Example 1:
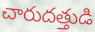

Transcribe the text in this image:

చారుదత్తుడి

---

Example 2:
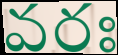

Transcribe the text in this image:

వరః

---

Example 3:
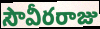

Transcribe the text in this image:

సౌవీరరాజు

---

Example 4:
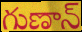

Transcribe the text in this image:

గుణాన్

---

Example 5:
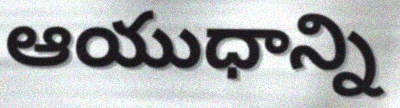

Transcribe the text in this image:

ఆయుధాన్ని